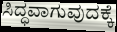
ಸಿದ್ಧವಾಗುವುದಕ್ಕೆ